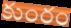
కుంరం